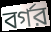
বর্গর